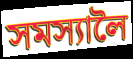
সমস্যালৈ